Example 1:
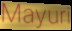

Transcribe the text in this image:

Mayuri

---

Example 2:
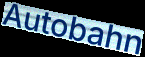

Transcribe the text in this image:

Autobahn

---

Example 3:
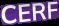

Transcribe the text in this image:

CERF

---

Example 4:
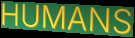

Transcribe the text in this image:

HUMANS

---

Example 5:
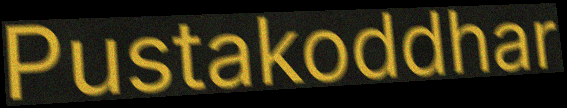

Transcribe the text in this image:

Pustakoddhar